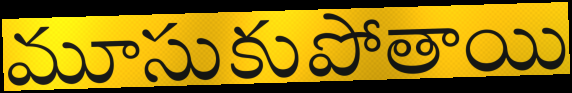
మూసుకుపోతాయి